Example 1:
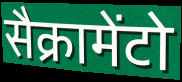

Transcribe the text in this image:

सैक्रामेंटो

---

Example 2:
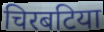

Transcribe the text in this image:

चिरबटिया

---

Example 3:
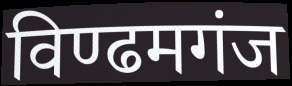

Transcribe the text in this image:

विण्ढमगंज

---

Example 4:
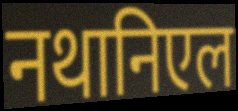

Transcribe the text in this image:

नथानिएल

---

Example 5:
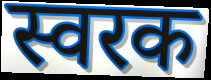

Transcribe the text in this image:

स्वरक